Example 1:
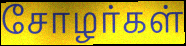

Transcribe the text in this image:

சோழர்கள்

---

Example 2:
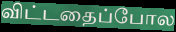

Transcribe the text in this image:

விட்டதைப்போல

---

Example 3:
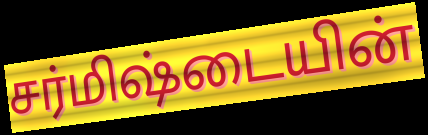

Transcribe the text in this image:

சர்மிஷ்டையின்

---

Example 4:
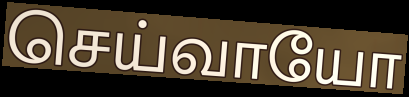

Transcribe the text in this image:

செய்வாயோ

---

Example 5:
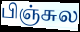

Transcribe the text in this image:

பிஞ்சுல